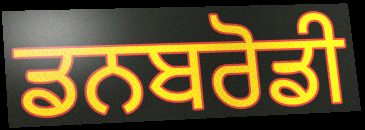
ਡਨਬਰੋਡੀ